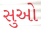
સુઓ